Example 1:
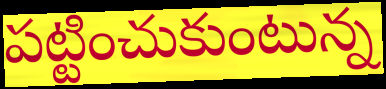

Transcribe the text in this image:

పట్టించుకుంటున్న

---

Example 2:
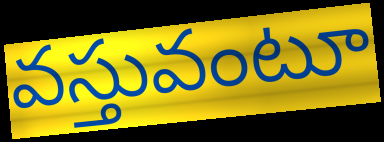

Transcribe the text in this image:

వస్తువంటూ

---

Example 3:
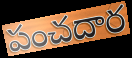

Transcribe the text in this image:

పంచదార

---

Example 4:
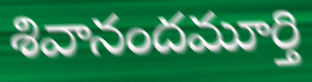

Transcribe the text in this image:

శివానందమూర్తి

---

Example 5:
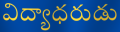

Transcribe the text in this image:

విద్యాధరుడు